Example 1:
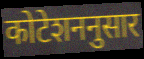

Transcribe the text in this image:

कोटेशननुसार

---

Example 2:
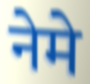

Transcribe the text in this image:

नेमे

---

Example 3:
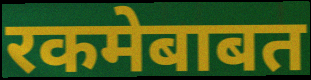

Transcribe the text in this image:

रकमेबाबत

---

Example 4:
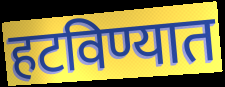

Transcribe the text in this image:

हटविण्यात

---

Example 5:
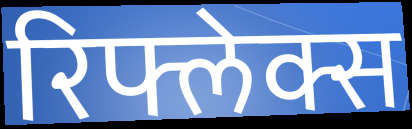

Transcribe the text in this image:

रिफ्लेक्स